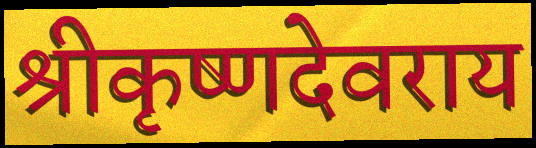
श्रीकृष्णदेवराय